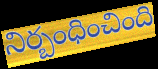
నిర్బంధించింది